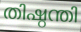
തിഷ്ഠന്തി